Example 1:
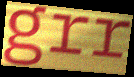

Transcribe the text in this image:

grr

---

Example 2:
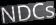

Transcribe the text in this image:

NDCs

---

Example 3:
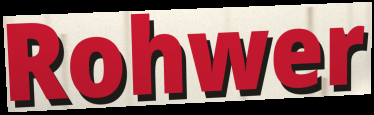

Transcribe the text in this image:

Rohwer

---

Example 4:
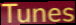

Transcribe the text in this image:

Tunes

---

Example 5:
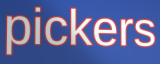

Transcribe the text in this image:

pickers